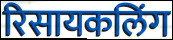
रिसायकलिंग